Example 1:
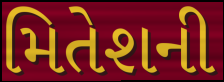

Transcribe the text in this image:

મિતેશની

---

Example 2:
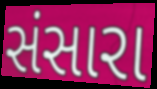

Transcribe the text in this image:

સંસારા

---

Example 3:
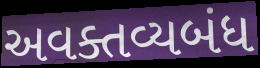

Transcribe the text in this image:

અવક્તવ્યબંધ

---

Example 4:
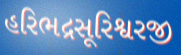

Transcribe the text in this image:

હરિભદ્રસૂરિશ્વરજી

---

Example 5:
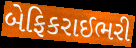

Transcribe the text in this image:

બેફિકરાઈભરી